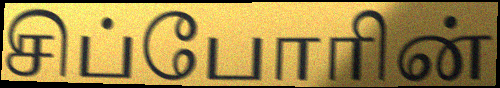
சிப்போரின்